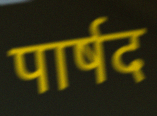
पार्षद